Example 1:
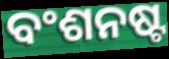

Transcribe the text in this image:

ବଂଶନଷ୍ଟ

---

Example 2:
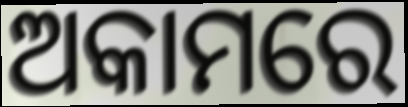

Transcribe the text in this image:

ଅକାମରେ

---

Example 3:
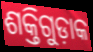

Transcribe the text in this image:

ଶକ୍ତିଗୁଡ଼ାକ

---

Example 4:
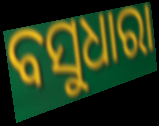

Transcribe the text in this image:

ବସୁଧାରା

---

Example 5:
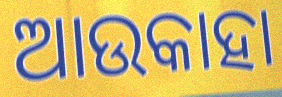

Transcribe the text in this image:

ଆଉକାହା